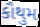
કૌથુમ